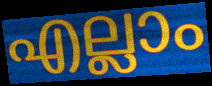
എല്ലാം